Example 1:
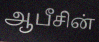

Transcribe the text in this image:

ஆபீசின்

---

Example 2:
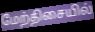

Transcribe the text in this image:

மேற்திசையில்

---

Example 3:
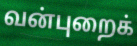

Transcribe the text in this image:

வன்புறைக்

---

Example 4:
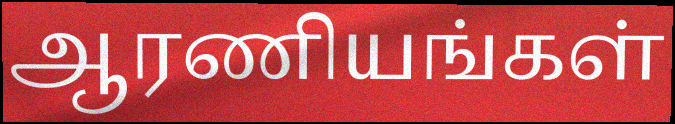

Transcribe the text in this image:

ஆரணியங்கள்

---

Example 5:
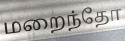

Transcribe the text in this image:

மறைந்தோ